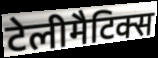
टेलीमैटिक्स